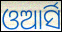
ଓଆର୍ସି